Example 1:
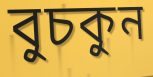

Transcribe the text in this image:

বুচকুন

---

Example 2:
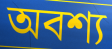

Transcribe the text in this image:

অবশ্য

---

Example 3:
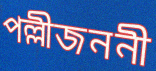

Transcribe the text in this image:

পল্লীজননী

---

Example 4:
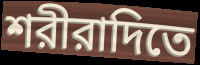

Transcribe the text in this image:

শরীরাদিতে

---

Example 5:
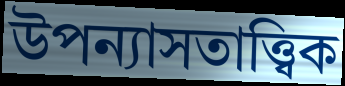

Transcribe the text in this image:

উপন্যাসতাত্ত্বিক